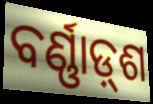
ବର୍ଣ୍ଣାଡ଼୍‌ଶ